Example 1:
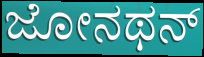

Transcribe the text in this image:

ಜೋನಥನ್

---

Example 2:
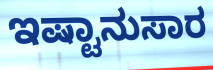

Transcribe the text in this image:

ಇಷ್ಟಾನುಸಾರ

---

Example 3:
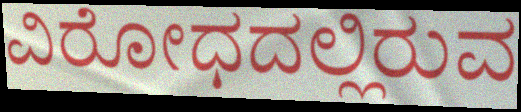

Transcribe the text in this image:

ವಿರೋಧದಲ್ಲಿರುವ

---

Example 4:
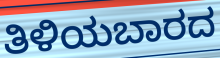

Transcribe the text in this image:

ತಿಳಿಯಬಾರದ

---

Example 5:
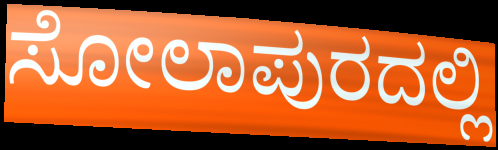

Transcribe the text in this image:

ಸೋಲಾಪುರದಲ್ಲಿ